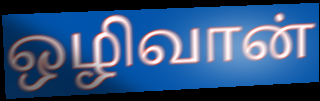
ஒழிவான்